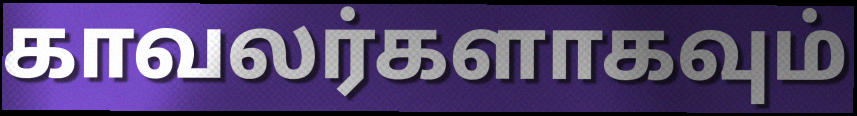
காவலர்களாகவும்